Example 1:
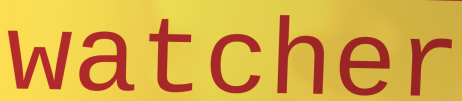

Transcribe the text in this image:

watcher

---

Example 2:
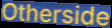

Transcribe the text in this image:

Otherside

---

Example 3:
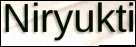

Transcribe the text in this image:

Niryukti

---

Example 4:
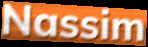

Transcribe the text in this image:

Nassim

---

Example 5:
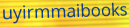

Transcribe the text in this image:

uyirmmaibooks